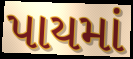
પાયમાં